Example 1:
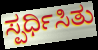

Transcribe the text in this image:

ಸ್ಪರ್ಧಿಸಿತು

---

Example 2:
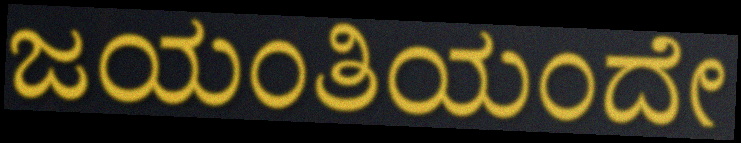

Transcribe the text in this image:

ಜಯಂತಿಯಂದೇ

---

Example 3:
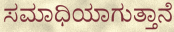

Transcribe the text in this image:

ಸಮಾಧಿಯಾಗುತ್ತಾನೆ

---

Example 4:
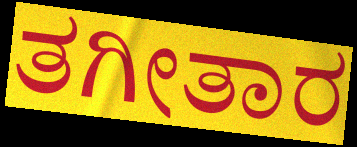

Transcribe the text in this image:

ತಗೀತಾರ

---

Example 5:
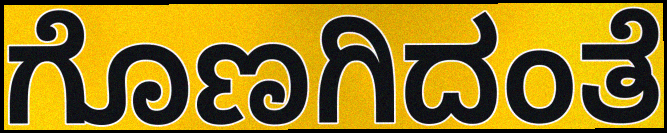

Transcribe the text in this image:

ಗೊಣಗಿದಂತೆ